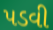
પડવી